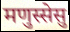
मणुस्सेसु